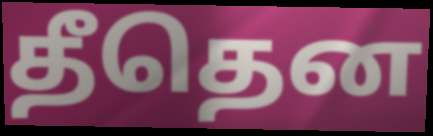
தீதென